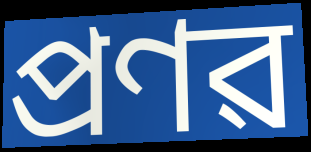
প্ৰণৱ